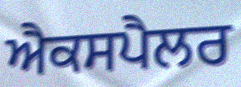
ਐਕਸਪੈਲਰ